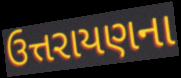
ઉત્તરાયણના